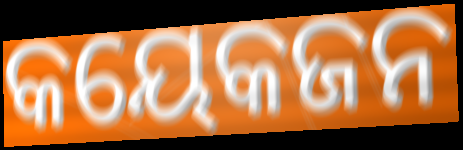
କୟେକଜନ